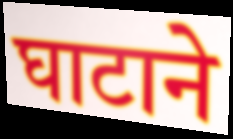
घाटाने